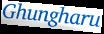
Ghungharu